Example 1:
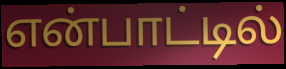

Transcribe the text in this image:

என்பாட்டில்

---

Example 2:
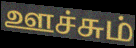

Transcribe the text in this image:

ஊச்சும்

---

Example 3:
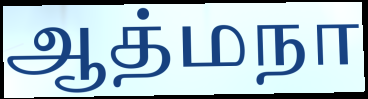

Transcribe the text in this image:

ஆத்மநா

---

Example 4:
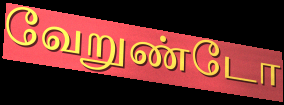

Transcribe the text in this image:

வேறுண்டோ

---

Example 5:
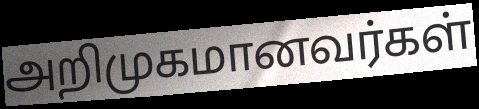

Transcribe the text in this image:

அறிமுகமானவர்கள்